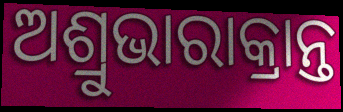
ଅଶ୍ରୁଭାରାକ୍ରାନ୍ତ